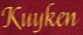
Kuyken